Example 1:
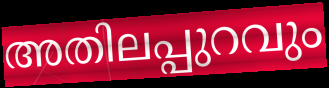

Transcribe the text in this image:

അതിലപ്പുറവും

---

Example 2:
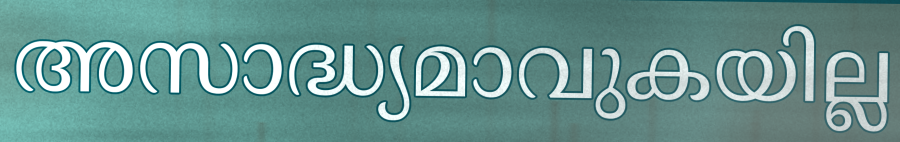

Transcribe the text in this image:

അസാദ്ധ്യമാവുകയില്ല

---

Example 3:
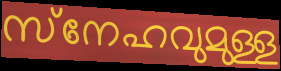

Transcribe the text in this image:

സ്‌നേഹവുമുള്ള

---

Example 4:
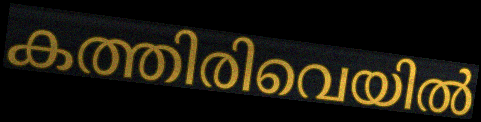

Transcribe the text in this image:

കത്തിരിവെയിൽ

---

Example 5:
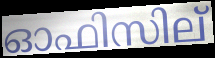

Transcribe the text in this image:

ഓഫിസില്